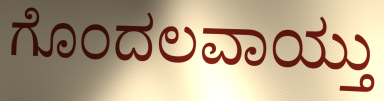
ಗೊಂದಲವಾಯ್ತು